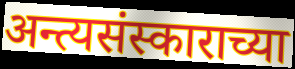
अन्त्यसंस्काराच्या